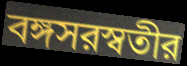
বঙ্গসরস্বতীর